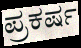
ಪ್ರಕರ್ಷ